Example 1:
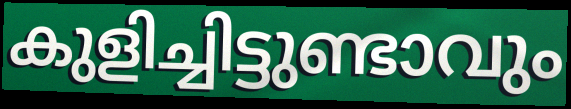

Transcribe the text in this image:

കുളിച്ചിട്ടുണ്ടാവും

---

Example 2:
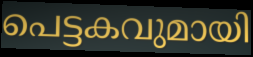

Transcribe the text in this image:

പെട്ടകവുമായി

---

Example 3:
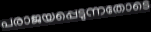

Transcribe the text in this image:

പരാജയപ്പെടുന്നതോടെ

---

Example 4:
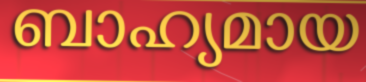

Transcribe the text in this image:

ബാഹ്യമായ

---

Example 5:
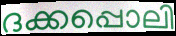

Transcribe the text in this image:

ദക്കപ്പൊലി